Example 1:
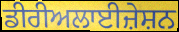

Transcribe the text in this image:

ਡੀਰੀਅਲਾਈਜ਼ੇਸ਼ਨ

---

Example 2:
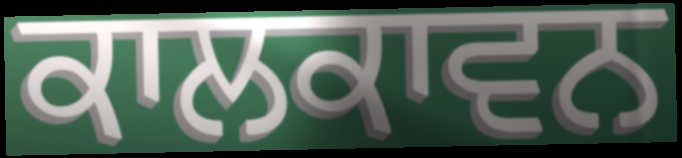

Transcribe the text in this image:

ਕਾਲਕਾਵਨ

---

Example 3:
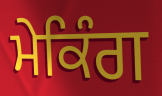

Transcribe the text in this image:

ਮੇਕਿੰਗ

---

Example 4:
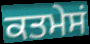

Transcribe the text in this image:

ਕਤਮੇਸਂ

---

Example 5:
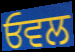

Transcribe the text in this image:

ਓਵਲ